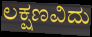
ಲಕ್ಷಣವಿದು